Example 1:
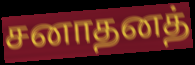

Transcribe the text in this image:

சனாதனத்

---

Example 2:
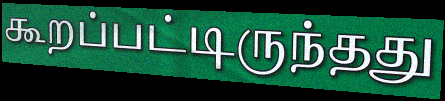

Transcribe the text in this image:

கூறப்பட்டிருந்தது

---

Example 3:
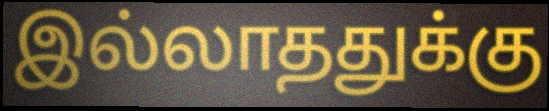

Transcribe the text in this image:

இல்லாததுக்கு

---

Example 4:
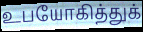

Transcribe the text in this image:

உபயோகித்துக்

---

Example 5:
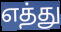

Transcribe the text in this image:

எத்து